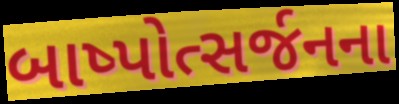
બાષ્પોત્સર્જનના